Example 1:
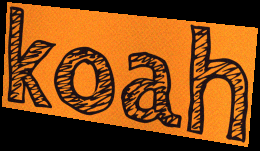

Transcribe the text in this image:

koah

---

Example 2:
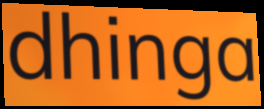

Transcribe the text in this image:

dhinga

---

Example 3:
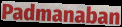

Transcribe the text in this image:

Padmanaban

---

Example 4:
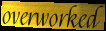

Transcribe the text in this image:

overworked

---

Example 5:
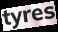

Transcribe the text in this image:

tyres